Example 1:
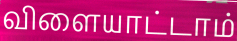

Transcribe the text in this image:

விளையாட்டாம்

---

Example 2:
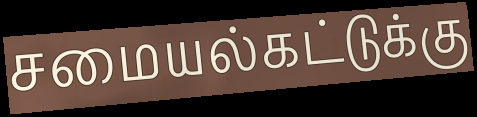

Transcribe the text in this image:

சமையல்கட்டுக்கு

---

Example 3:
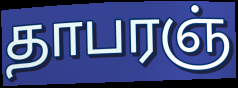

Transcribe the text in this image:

தாபரஞ்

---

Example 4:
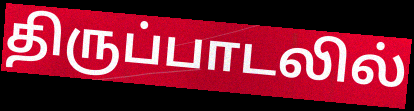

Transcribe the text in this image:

திருப்பாடலில்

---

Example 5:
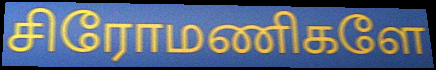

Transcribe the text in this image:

சிரோமணிகளே